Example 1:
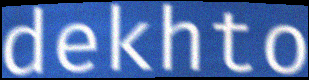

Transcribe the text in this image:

dekhto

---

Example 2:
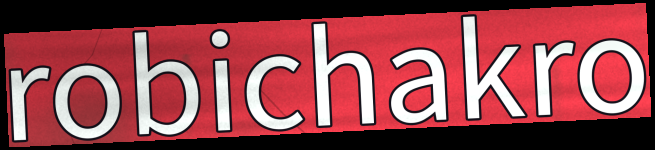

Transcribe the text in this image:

robichakro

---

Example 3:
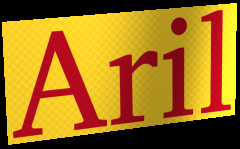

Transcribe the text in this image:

Aril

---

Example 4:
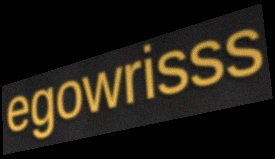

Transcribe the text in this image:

egowrisss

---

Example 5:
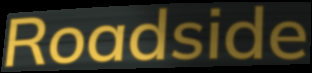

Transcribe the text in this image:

Roadside